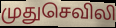
முதுசெவிலி